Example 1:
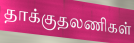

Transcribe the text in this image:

தாக்குதலணிகள்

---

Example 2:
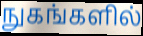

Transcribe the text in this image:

நுகங்களில்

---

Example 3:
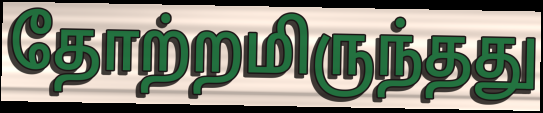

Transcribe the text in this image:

தோற்றமிருந்தது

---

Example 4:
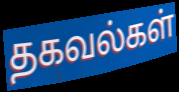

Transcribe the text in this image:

தகவல்கள்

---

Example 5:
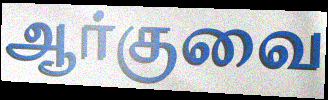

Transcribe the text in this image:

ஆர்குவை